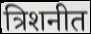
त्रिशनीत